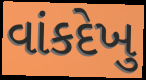
વાંકદેખુ